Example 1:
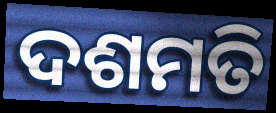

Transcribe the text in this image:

ଦଶମତି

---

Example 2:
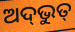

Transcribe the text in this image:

ଅଦ୍‌ଭୁତ୍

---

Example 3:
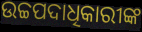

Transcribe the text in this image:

ଉଚ୍ଚପଦାଧିକାରୀଙ୍କ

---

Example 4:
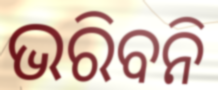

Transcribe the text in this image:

ଭରିବନି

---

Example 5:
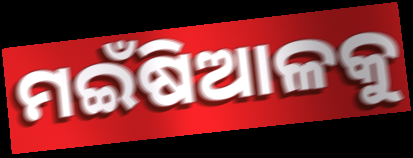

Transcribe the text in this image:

ମଇଁଷିଆଳକୁ